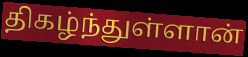
திகழ்ந்துள்ளான்